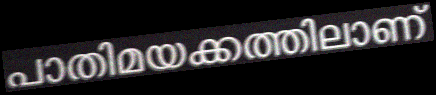
പാതിമയക്കത്തിലാണ്